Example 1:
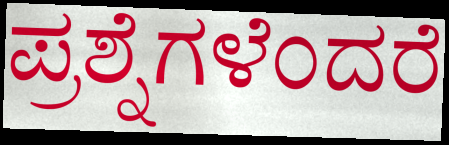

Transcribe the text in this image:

ಪ್ರಶ್ನೆಗಳೆಂದರೆ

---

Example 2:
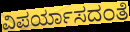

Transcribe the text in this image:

ವಿಪರ್ಯಾಸದಂತೆ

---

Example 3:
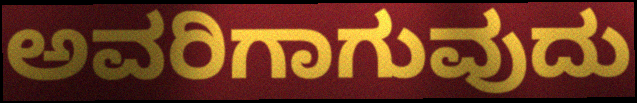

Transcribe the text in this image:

ಅವರಿಗಾಗುವುದು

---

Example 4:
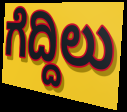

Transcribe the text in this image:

ಗೆದ್ದಿಲು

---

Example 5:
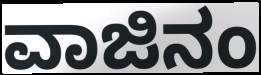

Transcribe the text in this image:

ವಾಜಿನಂ